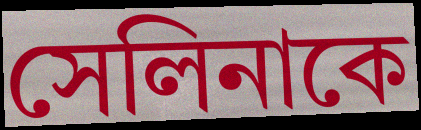
সেলিনাকে